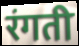
रंगती